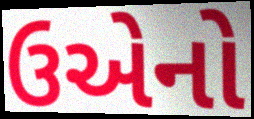
ઉએનો